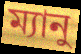
ম্যানু